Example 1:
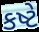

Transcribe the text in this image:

કષ્ટે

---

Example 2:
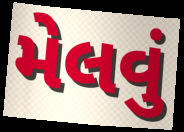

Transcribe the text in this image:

મેલવું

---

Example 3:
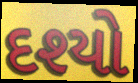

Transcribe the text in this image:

દશ્યો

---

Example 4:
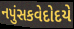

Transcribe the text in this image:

નપુંસકવેદોદયે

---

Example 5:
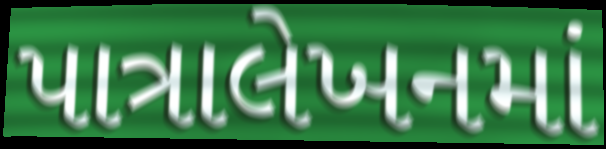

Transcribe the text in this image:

પાત્રાલેખનમાં